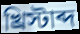
খ্রিস্টাব্দ